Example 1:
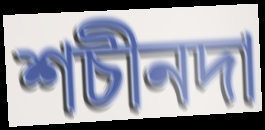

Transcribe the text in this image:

শচীনদা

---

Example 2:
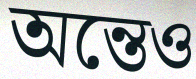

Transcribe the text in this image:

অন্তেও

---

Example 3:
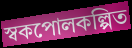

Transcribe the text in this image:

স্বকপোলকল্পিত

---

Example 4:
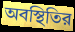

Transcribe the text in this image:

অবস্থিতির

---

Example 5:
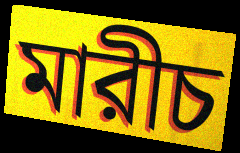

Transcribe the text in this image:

মারীচ